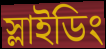
স্লাইডিং